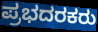
ಪ್ರಭದರಕರು